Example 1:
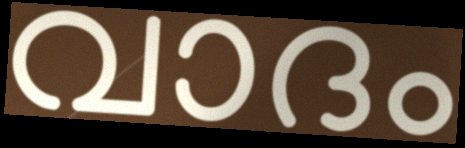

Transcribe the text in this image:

വാദം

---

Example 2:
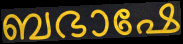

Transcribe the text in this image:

ബഭാഷേ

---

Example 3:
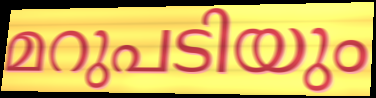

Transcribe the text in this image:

മറുപടിയും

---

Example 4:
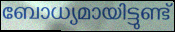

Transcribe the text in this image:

ബോധ്യമായിട്ടുണ്ട്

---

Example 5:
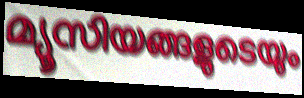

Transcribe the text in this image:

മ്യൂസിയങ്ങളുടെയും